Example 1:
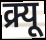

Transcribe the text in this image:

क्र्यू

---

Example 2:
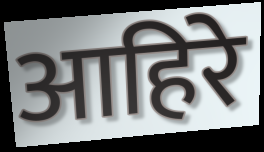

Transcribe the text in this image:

आहिरे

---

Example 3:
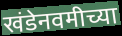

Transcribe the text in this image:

खंडेनवमीच्या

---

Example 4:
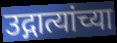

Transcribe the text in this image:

उद्गात्यांच्या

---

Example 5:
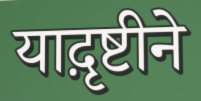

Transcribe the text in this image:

याद़ृष्टीने